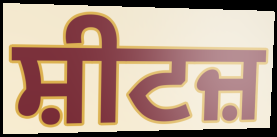
ਸ਼ੀਟਜ਼